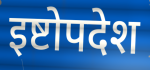
इष्टोपदेश